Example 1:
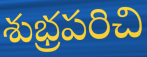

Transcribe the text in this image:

శుభ్రపరిచి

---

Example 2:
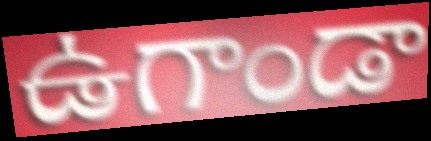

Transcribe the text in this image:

ఉగాండా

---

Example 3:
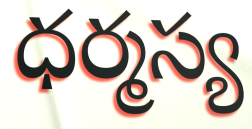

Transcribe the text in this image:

ధర్మస్య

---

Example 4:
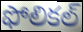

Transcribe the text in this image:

ఫోలికల్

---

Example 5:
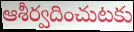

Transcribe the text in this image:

ఆశీర్వదించుటకు